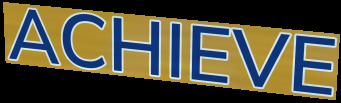
ACHIEVE